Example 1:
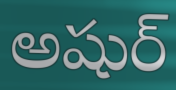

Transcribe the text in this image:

అషుర్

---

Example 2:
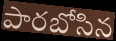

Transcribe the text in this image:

పారబోసిన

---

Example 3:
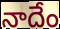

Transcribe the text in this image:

నాదేం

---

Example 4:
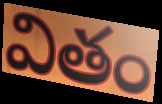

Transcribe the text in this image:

వితం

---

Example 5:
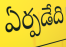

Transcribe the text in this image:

ఏర్పడేది